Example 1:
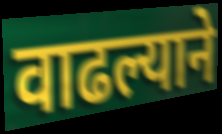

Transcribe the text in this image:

वाढल्याने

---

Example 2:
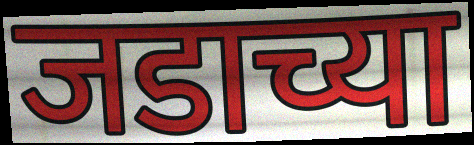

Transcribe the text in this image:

जडाच्या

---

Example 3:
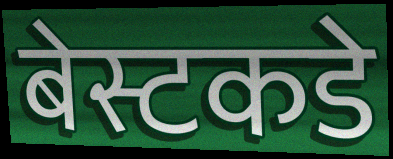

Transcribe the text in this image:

बेस्टकडे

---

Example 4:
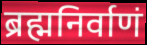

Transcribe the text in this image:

ब्रह्मनिर्वाणं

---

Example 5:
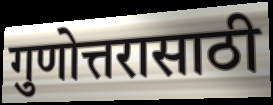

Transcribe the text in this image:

गुणोत्तरासाठी